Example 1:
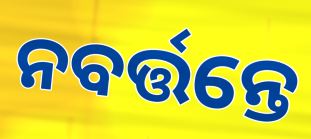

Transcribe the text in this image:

ନବର୍ତ୍ତନ୍ତେ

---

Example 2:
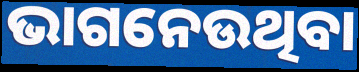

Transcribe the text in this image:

ଭାଗନେଉଥିବା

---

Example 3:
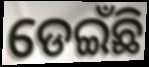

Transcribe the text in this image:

ଡେଇଁଛି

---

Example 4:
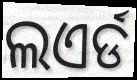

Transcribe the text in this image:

ଲଏର୍ଡ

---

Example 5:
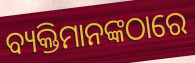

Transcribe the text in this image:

ବ୍ୟକ୍ତିମାନଙ୍କଠାରେ